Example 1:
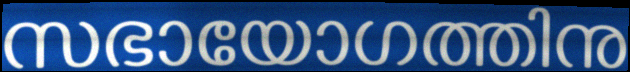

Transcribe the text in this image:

സഭായോഗത്തിനു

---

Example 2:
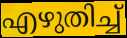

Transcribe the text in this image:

എഴുതിച്ച്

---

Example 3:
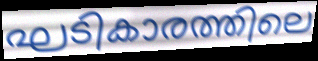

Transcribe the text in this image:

ഘടികാരത്തിലെ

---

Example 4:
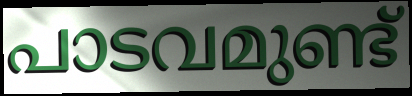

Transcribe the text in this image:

പാടവമുണ്ട്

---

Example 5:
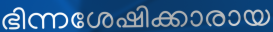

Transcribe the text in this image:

ഭിന്നശേഷിക്കാരായ